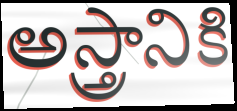
అస్త్రానికి